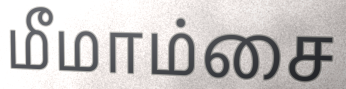
மீமாம்சை